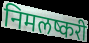
निमलष्करी